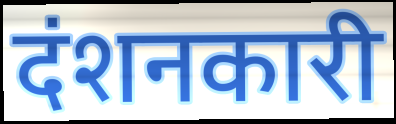
दंशनकारी